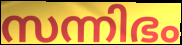
സന്നിഭം